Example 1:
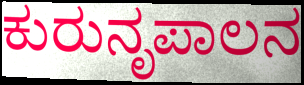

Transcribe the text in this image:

ಕುರುನೃಪಾಲನ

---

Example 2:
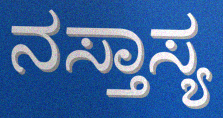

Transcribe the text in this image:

ನಸ್ತಾಸ್ಯ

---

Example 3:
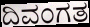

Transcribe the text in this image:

ದಿವಂಗತ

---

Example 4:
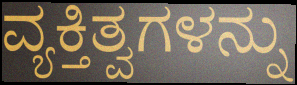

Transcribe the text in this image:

ವ್ಯಕ್ತಿತ್ವಗಳನ್ನು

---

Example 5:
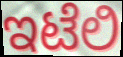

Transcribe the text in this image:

ಇಟೆಲಿ